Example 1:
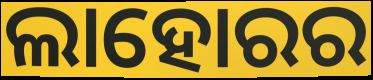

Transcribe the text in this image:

ଲାହୋରର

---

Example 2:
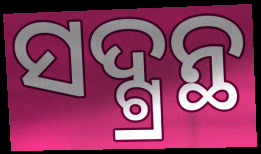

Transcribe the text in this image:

ସଦ୍ଗ୍ରନ୍ଥ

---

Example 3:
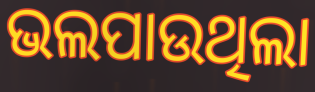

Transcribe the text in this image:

ଭଲପାଉଥିଲା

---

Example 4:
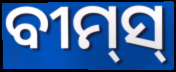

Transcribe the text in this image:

ବୀମ୍‌ସ୍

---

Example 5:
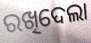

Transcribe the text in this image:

ରଖିଦେଲା